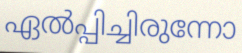
ഏൽപ്പിച്ചിരുന്നോ